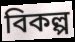
বিকল্প